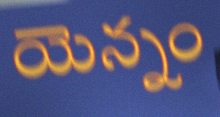
యెన్నం